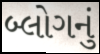
બ્લોગનું